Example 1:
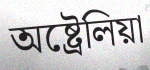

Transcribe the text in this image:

অষ্ট্ৰেলিয়া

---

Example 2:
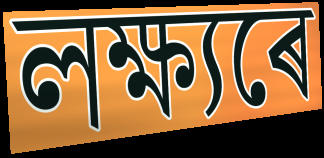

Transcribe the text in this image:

লক্ষ্যৰে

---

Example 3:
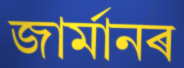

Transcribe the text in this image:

জাৰ্মানৰ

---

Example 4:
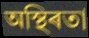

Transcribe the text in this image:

অস্থিৰতা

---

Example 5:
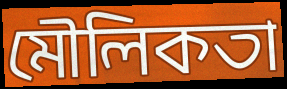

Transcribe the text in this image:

মৌলিকতা